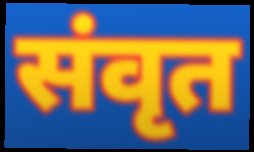
संवृत